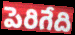
పెరిగేది